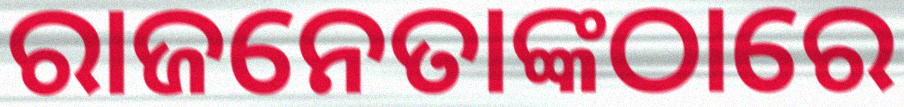
ରାଜନେତାଙ୍କଠାରେ